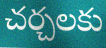
చర్చలకు